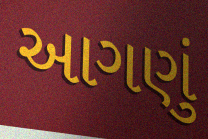
આગણું